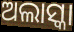
ଅଲାସ୍କା